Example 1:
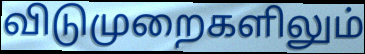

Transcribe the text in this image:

விடுமுறைகளிலும்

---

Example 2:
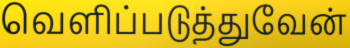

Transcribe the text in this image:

வெளிப்படுத்துவேன்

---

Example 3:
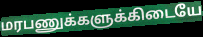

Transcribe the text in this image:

மரபணுக்களுக்கிடையே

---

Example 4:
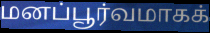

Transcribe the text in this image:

மனப்பூர்வமாகக்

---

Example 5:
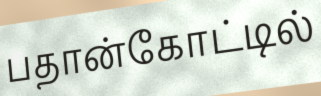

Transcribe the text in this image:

பதான்கோட்டில்